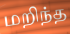
மறிந்த